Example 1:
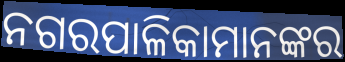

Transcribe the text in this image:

ନଗରପାଳିକାମାନଙ୍କର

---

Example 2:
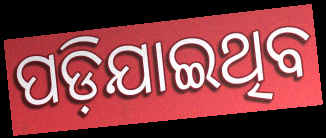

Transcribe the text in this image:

ପଡ଼ିଯାଇଥିବ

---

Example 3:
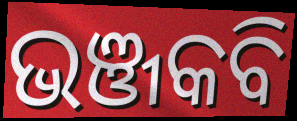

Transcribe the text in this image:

ଭଞ୍ଜକବି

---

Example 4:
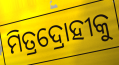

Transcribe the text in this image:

ମିତ୍ରଦ୍ରୋହୀକୁ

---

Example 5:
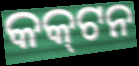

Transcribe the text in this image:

କକ୍‌ଟନ